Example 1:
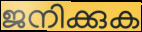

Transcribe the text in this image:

ജനിക്കുക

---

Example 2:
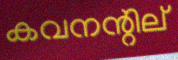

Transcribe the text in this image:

കവനന്റില്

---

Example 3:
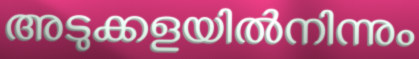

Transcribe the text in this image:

അടുക്കളയിൽനിന്നും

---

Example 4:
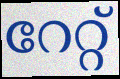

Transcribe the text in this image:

റേറ്റ്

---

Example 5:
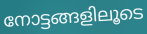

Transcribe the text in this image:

നോട്ടങ്ങളിലൂടെ